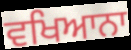
ਵਖਿਆਨਾ